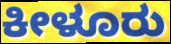
ಕೀಳೂರು